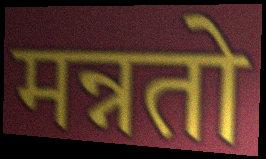
मन्नतो